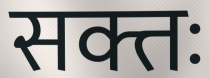
सक्तः